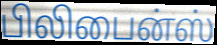
பிலிபைன்ஸ்